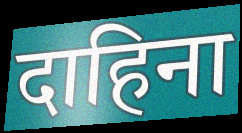
दाहिना